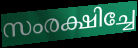
സംരക്ഷിച്ചേ